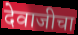
देवाजीचा